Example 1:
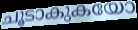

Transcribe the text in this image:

ചൂടാകുകയോ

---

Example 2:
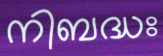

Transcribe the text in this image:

നിബദ്ധഃ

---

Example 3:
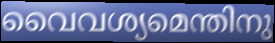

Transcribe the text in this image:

വൈവശ്യമെന്തിനു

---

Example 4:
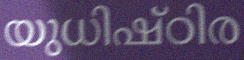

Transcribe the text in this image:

യുധിഷ്ഠിര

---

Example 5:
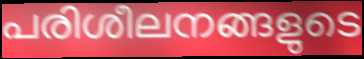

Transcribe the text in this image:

പരിശീലനങ്ങളുടെ